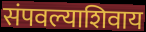
संपवल्याशिवाय